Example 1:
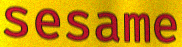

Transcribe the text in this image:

sesame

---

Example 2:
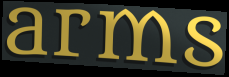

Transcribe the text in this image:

arms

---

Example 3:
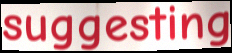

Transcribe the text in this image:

suggesting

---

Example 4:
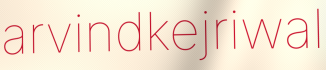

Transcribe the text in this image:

arvindkejriwal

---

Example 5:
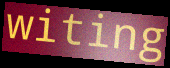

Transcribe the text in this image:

witing